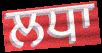
ਲਧਾ